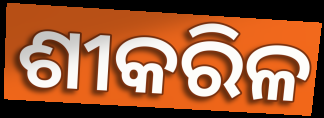
ଶୀକରିଳ